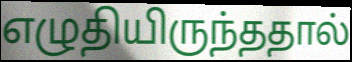
எழுதியிருந்ததால்